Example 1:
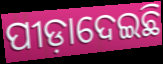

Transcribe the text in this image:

ପୀଡ଼ାଦେଇଛି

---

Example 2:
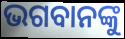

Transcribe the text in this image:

ଭଗବାନଙ୍କୁ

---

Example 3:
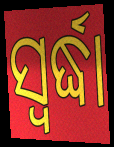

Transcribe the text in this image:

ସ୍ଵର୍ଦ୍ଧା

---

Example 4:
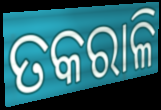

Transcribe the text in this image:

ତକରାଳି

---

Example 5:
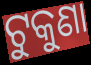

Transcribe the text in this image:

ଟୁକୁଣା